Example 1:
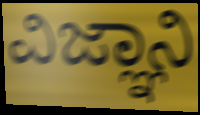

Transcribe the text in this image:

ವಿಜ್ಞಾನಿ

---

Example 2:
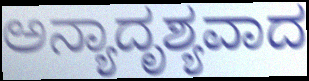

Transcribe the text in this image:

ಅನ್ಯಾದೃಶ್ಯವಾದ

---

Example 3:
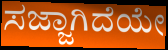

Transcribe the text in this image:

ಸಜ್ಜಾಗಿದೆಯೇ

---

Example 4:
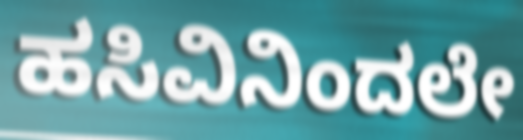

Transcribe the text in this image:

ಹಸಿವಿನಿಂದಲೇ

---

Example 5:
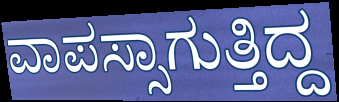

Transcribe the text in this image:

ವಾಪಸ್ಸಾಗುತ್ತಿದ್ದ